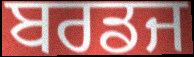
ਬਰਡਜ